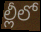
ల్లీలో